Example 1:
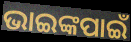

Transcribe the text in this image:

ଭାଇଙ୍କପାଇଁ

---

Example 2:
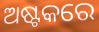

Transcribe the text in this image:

ଅଷ୍ଟକରେ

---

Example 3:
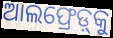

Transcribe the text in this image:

ଆଲଫ୍ରେଡ଼୍‍କୁ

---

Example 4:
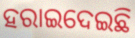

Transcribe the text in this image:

ହରାଇଦେଇଛି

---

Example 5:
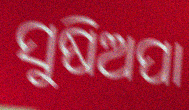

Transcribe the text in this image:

ସୁଷିଅପା